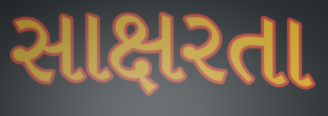
સાક્ષરતા